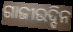
ଗାଜୀଉଦ୍ଦିନ